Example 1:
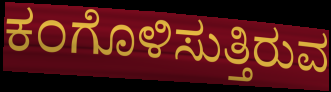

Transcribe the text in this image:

ಕಂಗೊಳಿಸುತ್ತಿರುವ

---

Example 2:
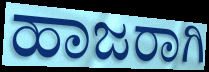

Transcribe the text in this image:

ಹಾಜರಾಗಿ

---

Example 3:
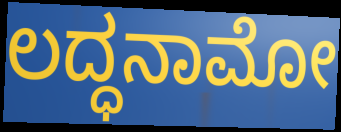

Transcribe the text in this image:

ಲದ್ಧನಾಮೋ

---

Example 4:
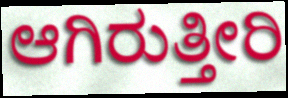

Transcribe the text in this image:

ಆಗಿರುತ್ತೀರಿ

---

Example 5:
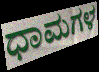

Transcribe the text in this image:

ಧಾಮಗಳ